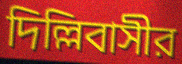
দিল্লিবাসীর